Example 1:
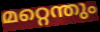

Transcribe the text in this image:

മറ്റെന്തും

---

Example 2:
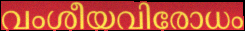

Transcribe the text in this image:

വംശീയവിരോധം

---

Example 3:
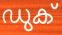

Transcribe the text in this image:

ഡുക്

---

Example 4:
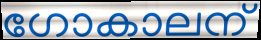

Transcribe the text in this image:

ഗോകാലന്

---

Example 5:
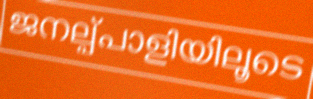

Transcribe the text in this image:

ജനല്പ്പാളിയിലൂടെ